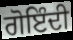
ਗੋਇੰਦੀ